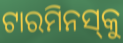
ଟାରମିନସ୍‌କୁ